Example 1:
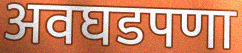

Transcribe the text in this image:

अवघडपणा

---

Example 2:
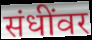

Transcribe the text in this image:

संधींवर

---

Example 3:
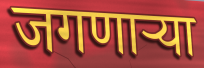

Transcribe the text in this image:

जगणाऱ्या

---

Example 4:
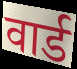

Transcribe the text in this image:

वार्ड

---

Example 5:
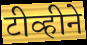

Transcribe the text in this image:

टीव्हीने